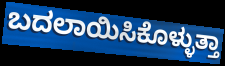
ಬದಲಾಯಿಸಿಕೊಳ್ಳುತ್ತಾ